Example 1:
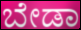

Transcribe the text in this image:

ಬೇಡಾ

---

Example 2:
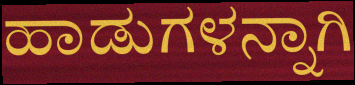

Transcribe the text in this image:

ಹಾಡುಗಳನ್ನಾಗಿ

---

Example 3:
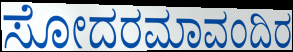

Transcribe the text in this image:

ಸೋದರಮಾವಂದಿರ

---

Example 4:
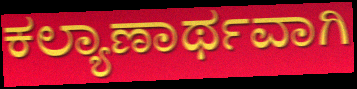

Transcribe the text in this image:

ಕಲ್ಯಾಣಾರ್ಥವಾಗಿ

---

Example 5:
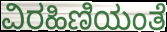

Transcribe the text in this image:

ವಿರಹಿಣಿಯಂತೆ